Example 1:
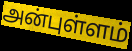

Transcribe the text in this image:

அன்புள்ளம்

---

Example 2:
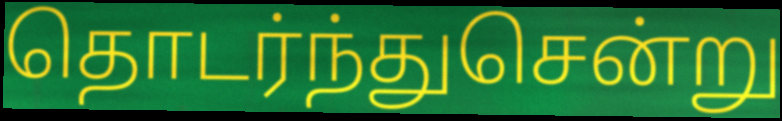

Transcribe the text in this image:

தொடர்ந்துசென்று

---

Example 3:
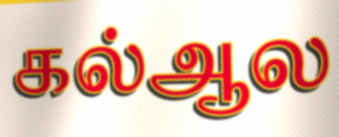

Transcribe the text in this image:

கல்ஆல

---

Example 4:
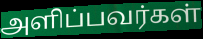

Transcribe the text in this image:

அளிப்பவர்கள்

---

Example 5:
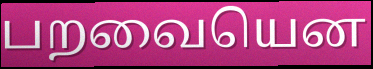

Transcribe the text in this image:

பறவையென